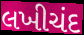
લખીચંદ